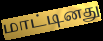
மாட்டினது